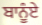
ਬਾਨੂੰਏ